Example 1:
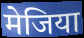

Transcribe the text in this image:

मेजिया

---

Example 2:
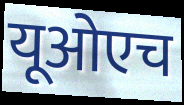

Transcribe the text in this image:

यूओएच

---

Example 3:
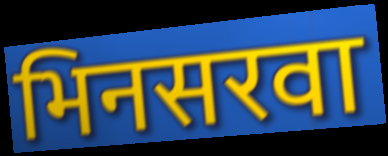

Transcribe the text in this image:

भिनसरवा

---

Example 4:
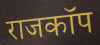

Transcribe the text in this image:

राजकॉप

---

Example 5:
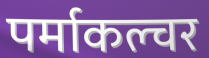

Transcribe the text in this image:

पर्माकल्चर